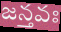
జన్తవః